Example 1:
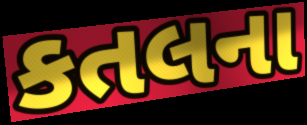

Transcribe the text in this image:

કતલના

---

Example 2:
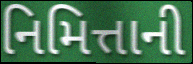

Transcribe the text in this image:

નિમિત્તાની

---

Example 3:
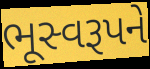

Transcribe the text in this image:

ભૂસ્વરૂપને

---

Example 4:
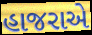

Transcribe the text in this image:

હાજરાએ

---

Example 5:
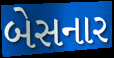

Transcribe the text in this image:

બેસનાર